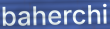
baherchi